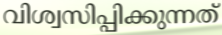
വിശ്വസിപ്പിക്കുന്നത്